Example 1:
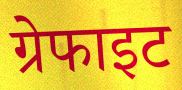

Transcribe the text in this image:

ग्रेफाइट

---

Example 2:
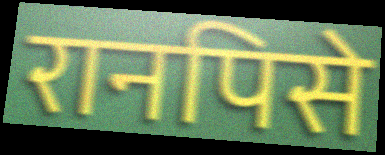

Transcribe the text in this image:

रानपिसे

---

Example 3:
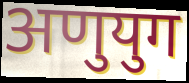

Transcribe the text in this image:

अणुयुग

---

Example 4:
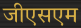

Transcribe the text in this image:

जीएसएम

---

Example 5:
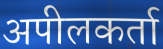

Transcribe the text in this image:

अपीलकर्ता